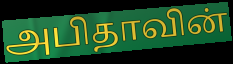
அபிதாவின்